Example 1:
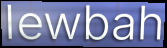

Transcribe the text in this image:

Iewbah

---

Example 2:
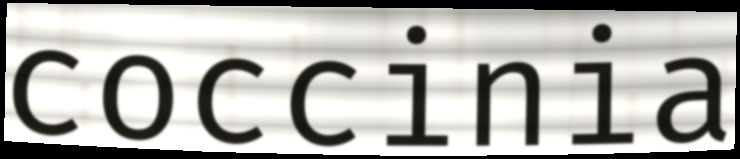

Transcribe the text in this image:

coccinia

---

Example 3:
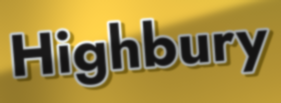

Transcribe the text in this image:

Highbury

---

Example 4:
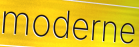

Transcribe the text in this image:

moderne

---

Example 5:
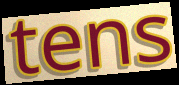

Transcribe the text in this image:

tens